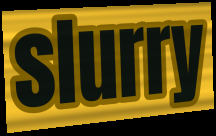
slurry